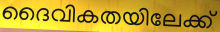
ദൈവികതയിലേക്ക്